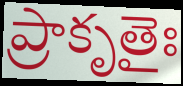
ప్రాకృతైః